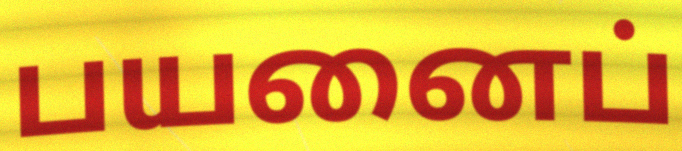
பயனைப்